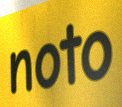
noto